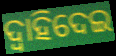
ଦ୍ୱାହିଦେଇ